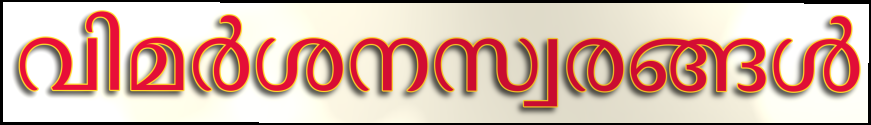
വിമർശനസ്വരങ്ങൾ